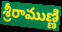
శ్రీరాముణ్ణి